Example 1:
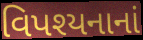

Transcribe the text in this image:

વિપશ્યનાનાં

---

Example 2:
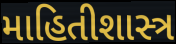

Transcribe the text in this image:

માહિતીશાસ્ત્ર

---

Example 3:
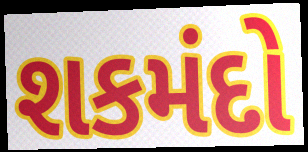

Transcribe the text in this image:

શકમંદો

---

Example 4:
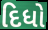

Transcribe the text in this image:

દિધો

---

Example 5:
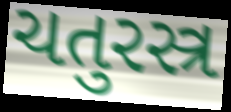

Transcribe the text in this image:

ચતુરસ્ત્ર